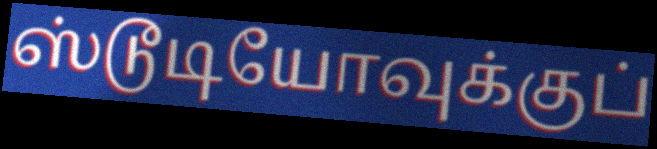
ஸ்டூடியோவுக்குப்